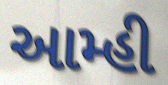
આમ્હી